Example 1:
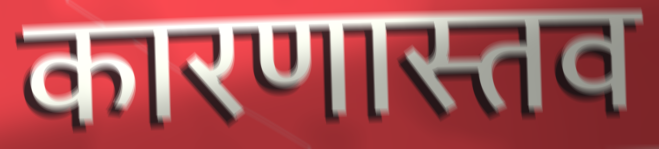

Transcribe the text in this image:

कारणास्तव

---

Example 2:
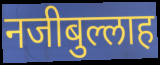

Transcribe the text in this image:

नजीबुल्लाह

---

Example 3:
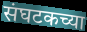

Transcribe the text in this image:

संघटकच्या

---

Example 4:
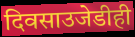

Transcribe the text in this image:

दिवसाउजेडीही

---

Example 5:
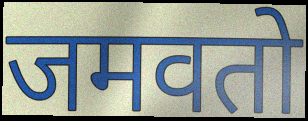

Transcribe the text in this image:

जमवतो